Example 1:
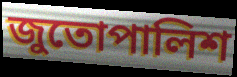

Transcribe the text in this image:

জুতোপালিশ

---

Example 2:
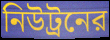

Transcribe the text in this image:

নিউট্রনের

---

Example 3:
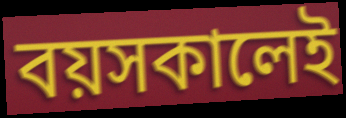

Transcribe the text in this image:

বয়সকালেই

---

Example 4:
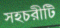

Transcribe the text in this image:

সহচরীটি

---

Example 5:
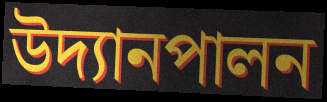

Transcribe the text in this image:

উদ্যানপালন